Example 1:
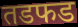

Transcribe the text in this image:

तडफड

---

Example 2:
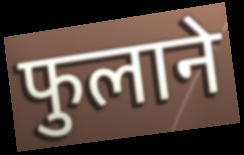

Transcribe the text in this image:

फुलाने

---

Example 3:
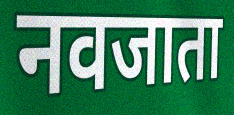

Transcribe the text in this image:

नवजाता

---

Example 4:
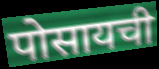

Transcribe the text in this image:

पोसायची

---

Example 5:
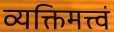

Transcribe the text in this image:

व्यक्तिमत्त्वं